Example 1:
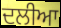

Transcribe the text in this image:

ਦਲੀਆ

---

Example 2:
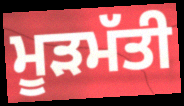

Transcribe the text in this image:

ਮੂੜਮੱਤੀ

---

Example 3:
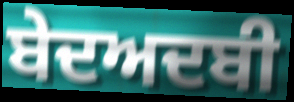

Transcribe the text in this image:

ਬੇਦਅਦਬੀ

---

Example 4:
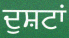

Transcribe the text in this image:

ਦੁਸ਼ਟਾਂ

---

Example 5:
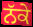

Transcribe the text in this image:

ਨੱਕੇ